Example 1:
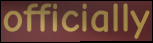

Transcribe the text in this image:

officially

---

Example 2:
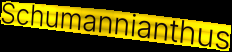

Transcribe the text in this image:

Schumannianthus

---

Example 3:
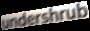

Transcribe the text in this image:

undershrub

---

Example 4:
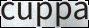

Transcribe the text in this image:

cuppa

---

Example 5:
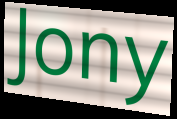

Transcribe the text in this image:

Jony